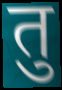
तु